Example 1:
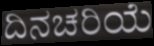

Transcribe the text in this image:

ದಿನಚರಿಯೆ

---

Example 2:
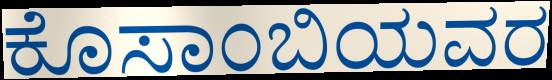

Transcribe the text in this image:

ಕೊಸಾಂಬಿಯವರ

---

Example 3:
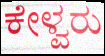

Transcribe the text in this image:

ಕೇಳ್ವರು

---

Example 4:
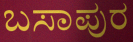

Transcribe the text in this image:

ಬಸಾಪುರ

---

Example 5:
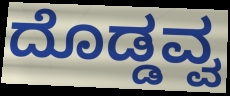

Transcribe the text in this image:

ದೊಡ್ಡವ್ವ